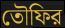
তৌফির